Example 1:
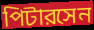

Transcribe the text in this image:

পিটারসেন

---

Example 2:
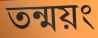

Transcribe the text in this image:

তন্ময়ং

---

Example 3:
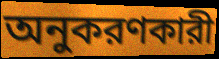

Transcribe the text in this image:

অনুকরণকারী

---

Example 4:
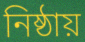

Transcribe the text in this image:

নিষ্ঠায়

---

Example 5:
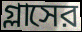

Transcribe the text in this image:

গ্লাসের